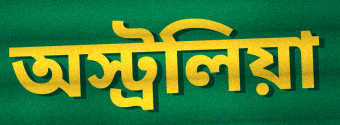
অস্ট্রলিয়া